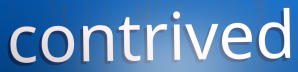
contrived